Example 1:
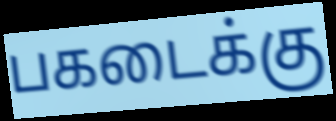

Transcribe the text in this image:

பகடைக்கு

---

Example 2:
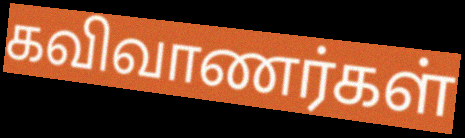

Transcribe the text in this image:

கவிவாணர்கள்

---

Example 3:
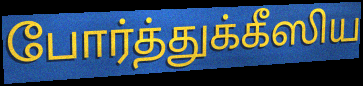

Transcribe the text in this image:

போர்த்துக்கீஸிய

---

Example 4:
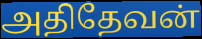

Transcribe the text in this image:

அதிதேவன்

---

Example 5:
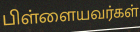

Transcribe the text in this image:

பிள்ளையவர்கள்